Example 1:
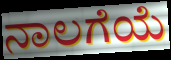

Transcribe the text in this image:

ನಾಲಗೆಯೆ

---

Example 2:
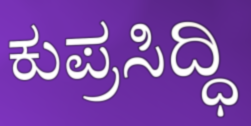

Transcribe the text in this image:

ಕುಪ್ರಸಿದ್ಧಿ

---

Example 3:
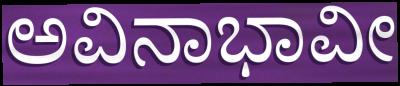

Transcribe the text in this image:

ಅವಿನಾಭಾವೀ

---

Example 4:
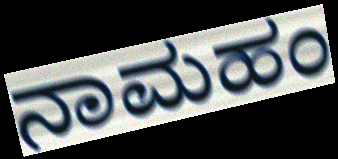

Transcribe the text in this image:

ನಾಮಹಂ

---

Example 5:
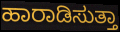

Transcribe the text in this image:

ಹಾರಾಡಿಸುತ್ತಾ